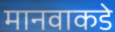
मानवाकडे